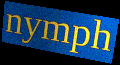
nymph